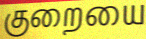
குறையை